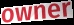
owner